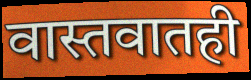
वास्तवातही